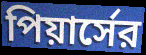
পিয়ার্সের